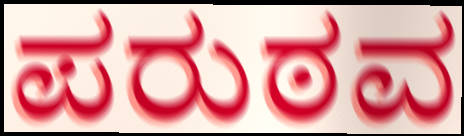
ಪರುಠವ